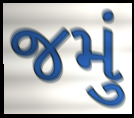
જમું